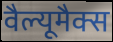
वैल्यूमैक्स